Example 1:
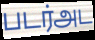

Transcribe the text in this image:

படர்அட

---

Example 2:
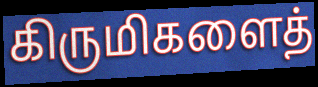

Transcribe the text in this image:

கிருமிகளைத்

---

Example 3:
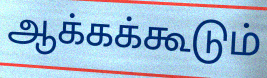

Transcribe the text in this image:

ஆக்கக்கூடும்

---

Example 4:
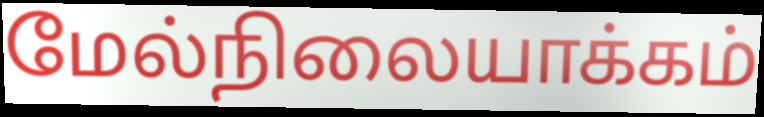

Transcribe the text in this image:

மேல்நிலையாக்கம்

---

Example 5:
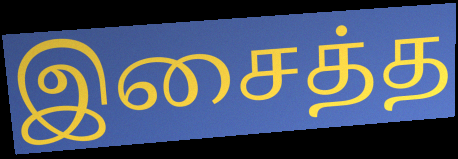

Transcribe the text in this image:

இசைத்த